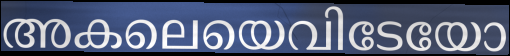
അകലെയെവിടേയോ